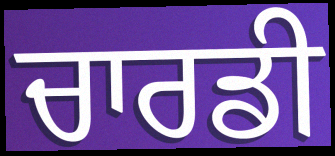
ਚਾਰਡੀ